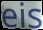
eis